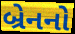
બ્રેનનો